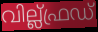
വില്ല്ഫ്രഡ്